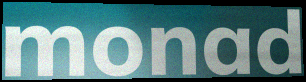
monad